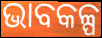
ଭାବକଳ୍ପ